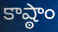
కాష్ఠాం